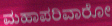
ಮಹಾಪರಿವಾರೋ